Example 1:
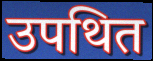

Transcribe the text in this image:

उपथित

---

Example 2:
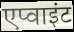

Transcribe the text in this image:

एप्वाइंट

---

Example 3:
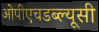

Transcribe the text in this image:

ओपीएचडब्ल्यूसी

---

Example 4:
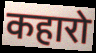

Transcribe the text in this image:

कहारो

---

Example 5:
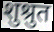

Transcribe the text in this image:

शुश्रुत